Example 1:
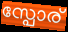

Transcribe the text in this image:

സ്പോര്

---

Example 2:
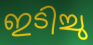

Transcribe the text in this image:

ഇടിച്ചു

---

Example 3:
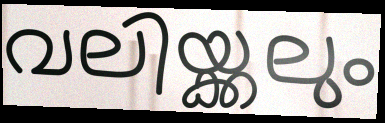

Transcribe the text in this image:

വലിയ്ക്കലും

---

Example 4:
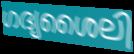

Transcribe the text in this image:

ഗദ്യശൈലി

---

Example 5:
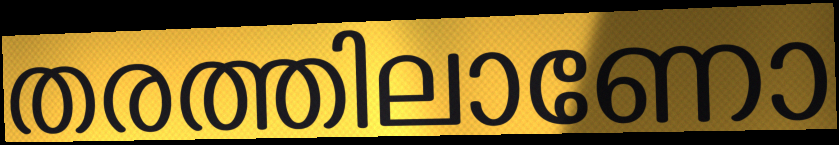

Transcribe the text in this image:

തരത്തിലാണോ